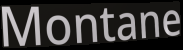
Montane